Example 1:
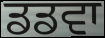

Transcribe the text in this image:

ਡਡਵਾ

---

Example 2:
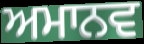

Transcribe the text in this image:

ਅਮਾਨਵ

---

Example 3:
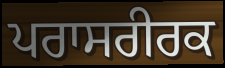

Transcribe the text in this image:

ਪਰਾਸਰੀਰਕ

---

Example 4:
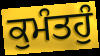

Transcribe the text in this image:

ਕੁਮੰਤਹੁੰ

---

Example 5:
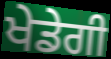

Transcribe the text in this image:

ਖੇਡੇਗੀ